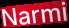
Narmi